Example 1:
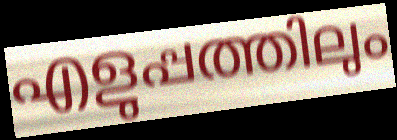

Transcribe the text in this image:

എളുപ്പത്തിലും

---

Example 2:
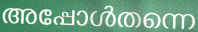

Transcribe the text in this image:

അപ്പോൾതന്നെ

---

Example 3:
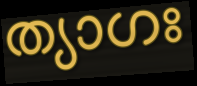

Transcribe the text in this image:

ത്യാഗഃ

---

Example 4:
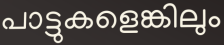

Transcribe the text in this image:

പാട്ടുകളെങ്കിലും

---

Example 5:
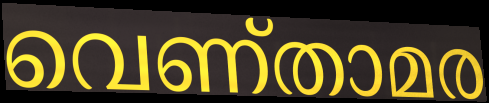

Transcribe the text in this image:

വെണ്താമര